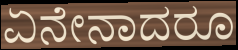
ಏನೇನಾದರೂ